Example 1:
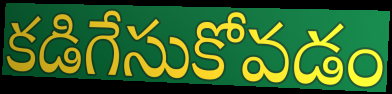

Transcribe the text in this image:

కడిగేసుకోవడం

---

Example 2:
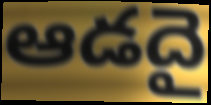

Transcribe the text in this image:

ఆడదై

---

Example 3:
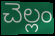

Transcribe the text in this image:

చెల్లం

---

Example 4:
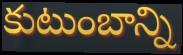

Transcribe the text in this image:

కుటుంబాన్ని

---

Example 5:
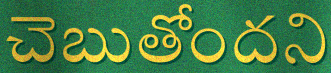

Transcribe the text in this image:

చెబుతోందని